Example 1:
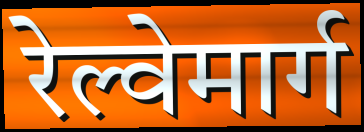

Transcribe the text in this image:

रेल्वेमार्ग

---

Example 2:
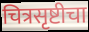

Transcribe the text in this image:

चित्रसृष्टीचा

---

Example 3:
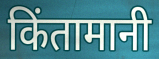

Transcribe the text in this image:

किंतामानी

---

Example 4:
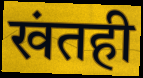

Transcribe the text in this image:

खंतही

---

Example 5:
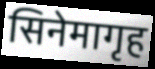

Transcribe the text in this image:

सिनेमागृह